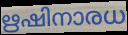
ഋഷിനാരധ